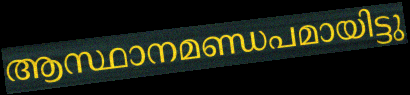
ആസ്ഥാനമണ്ഡപമായിട്ടു